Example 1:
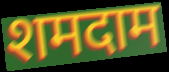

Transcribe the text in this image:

शमदाम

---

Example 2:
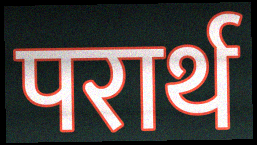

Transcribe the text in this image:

परार्थ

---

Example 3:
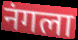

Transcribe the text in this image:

नंगला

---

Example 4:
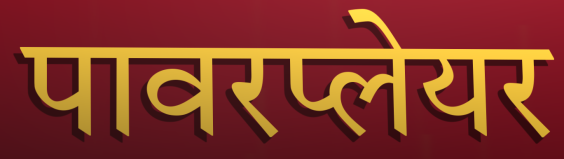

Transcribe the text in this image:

पावरप्लेयर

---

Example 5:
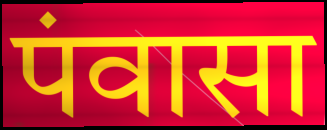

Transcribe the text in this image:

पंवासा